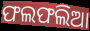
ଫଲଫଲିଆ